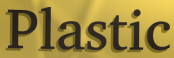
Plastic